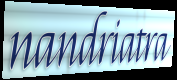
nandriatra